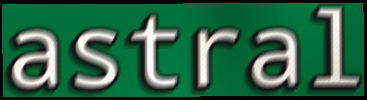
astral